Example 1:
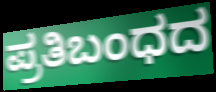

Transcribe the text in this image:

ಪ್ರತಿಬಂಧದ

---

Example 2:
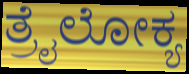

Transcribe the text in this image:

ತ್ರೈಲೋಕ್ಯ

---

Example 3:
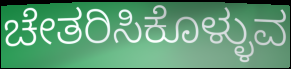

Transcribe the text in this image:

ಚೇತರಿಸಿಕೊಳ್ಳುವ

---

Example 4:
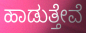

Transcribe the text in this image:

ಹಾಡುತ್ತೇವೆ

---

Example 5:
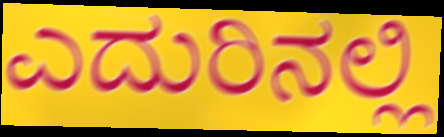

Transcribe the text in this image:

ಎದುರಿನಲ್ಲಿ